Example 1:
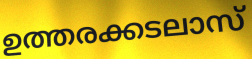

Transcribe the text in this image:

ഉത്തരക്കടലാസ്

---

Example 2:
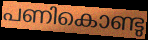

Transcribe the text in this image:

പണികൊണ്ടു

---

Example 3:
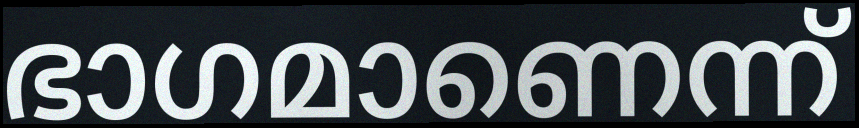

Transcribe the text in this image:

ഭാഗമാണെന്ന്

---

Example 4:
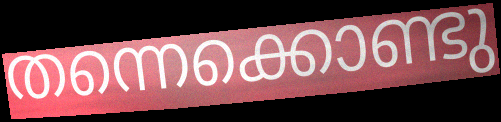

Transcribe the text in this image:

തന്നെക്കൊണ്ടു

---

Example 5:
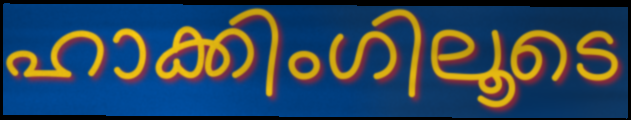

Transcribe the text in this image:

ഹാക്കിംഗിലൂടെ